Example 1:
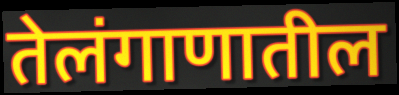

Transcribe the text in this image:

तेलंगाणातील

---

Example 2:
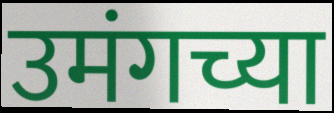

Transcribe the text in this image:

उमंगच्या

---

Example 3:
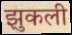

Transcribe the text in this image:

झुकली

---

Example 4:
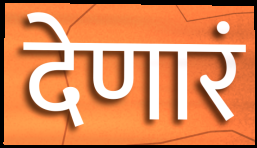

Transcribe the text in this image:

देणारं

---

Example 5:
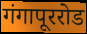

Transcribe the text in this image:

गंगापूररोड